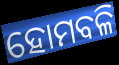
ହୋମବଳି